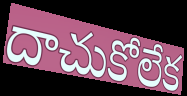
దాచుకోలేక